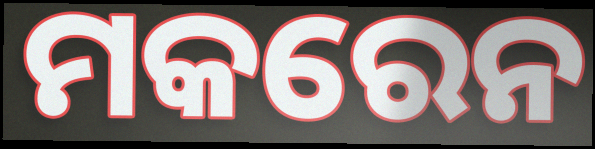
ମକରେନ